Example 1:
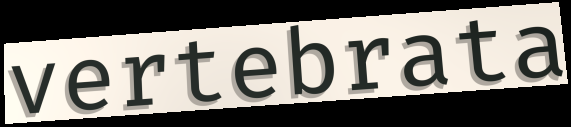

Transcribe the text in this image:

vertebrata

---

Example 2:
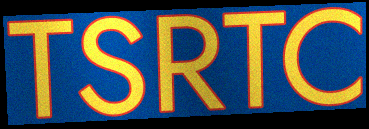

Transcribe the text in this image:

TSRTC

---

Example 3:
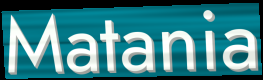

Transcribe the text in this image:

Matania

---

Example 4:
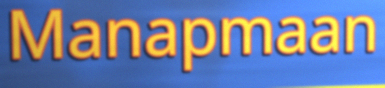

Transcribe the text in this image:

Manapmaan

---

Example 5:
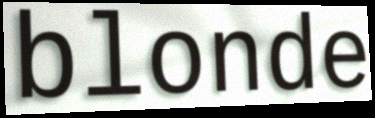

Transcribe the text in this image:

blonde